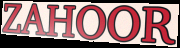
ZAHOOR